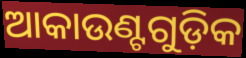
ଆକାଉଣ୍ଟଗୁଡ଼ିକ